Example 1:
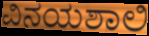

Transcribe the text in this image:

ವಿನಯಶಾಲಿ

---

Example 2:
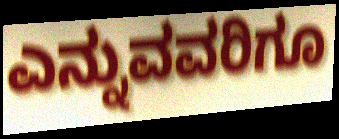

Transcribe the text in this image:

ಎನ್ನುವವರಿಗೂ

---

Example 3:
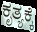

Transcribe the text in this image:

ಕೃತ್ಯಕ್ಕೆ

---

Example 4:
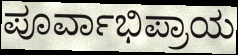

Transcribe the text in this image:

ಪೂರ್ವಾಭಿಪ್ರಾಯ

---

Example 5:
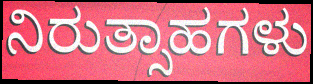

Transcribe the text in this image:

ನಿರುತ್ಸಾಹಗಳು